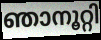
ഞാനൂറ്റി